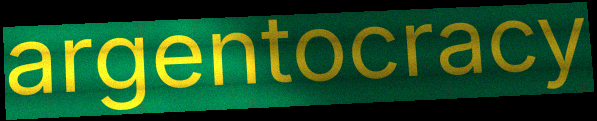
argentocracy